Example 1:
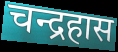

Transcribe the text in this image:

चन्द्रहास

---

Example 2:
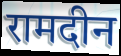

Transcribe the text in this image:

रामदीन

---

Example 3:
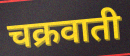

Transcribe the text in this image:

चक्रवाती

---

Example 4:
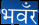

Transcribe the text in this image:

भवँर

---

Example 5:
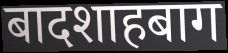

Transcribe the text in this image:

बादशाहबाग